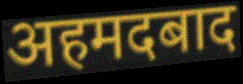
अहमदबाद